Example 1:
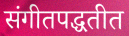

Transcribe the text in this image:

संगीतपद्धतीत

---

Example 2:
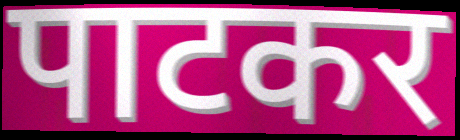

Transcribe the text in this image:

पाटकर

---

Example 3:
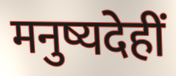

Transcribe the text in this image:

मनुष्यदेहीं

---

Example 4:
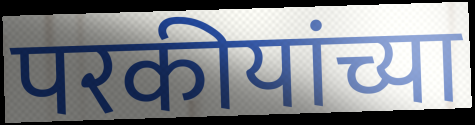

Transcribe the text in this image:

परकीयांच्या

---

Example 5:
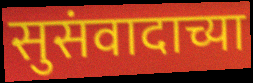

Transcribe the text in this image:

सुसंवादाच्या